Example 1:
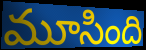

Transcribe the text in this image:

మూసింది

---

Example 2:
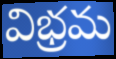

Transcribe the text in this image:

విభ్రమ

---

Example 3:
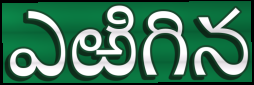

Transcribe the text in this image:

ఎఱిగిన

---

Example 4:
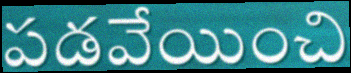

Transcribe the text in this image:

పడవేయించి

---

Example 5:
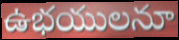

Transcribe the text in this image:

ఉభయులనూ